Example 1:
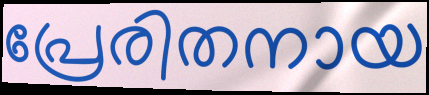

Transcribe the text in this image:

പ്രേരിതനായ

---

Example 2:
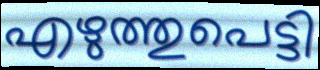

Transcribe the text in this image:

എഴുത്തുപെട്ടി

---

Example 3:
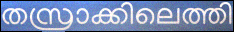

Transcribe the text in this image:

തസ്രാക്കിലെത്തി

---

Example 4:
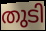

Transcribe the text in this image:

തുടി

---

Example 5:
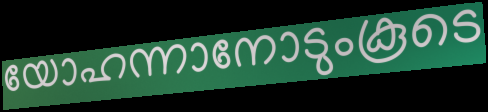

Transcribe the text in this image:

യോഹന്നാനോടുംകൂടെ